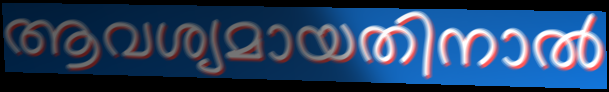
ആവശ്യമായതിനാൽ